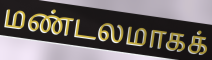
மண்டலமாகக்